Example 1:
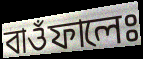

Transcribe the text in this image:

বাওঁফালেঃ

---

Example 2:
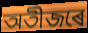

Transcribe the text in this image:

অতীজৰে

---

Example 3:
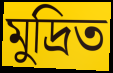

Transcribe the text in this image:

মুদ্ৰিত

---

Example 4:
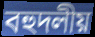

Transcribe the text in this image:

বহুদলীয়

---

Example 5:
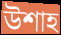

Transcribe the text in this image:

উশাহ